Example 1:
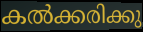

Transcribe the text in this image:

കൽക്കരിക്കു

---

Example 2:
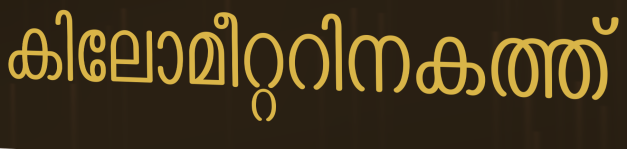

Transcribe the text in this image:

കിലോമീറ്ററിനകത്ത്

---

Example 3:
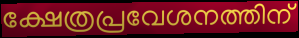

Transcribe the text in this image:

ക്ഷേത്രപ്രവേശനത്തിന്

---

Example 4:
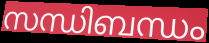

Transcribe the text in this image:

സന്ധിബന്ധം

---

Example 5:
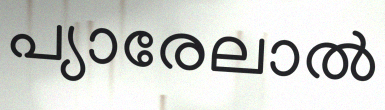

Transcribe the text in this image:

പ്യാരേലാൽ